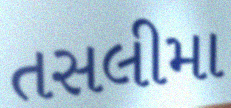
તસલીમા